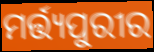
ମର୍ତ୍ତ୍ୟପୁରୀର